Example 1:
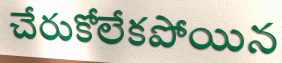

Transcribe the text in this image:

చేరుకోలేకపోయిన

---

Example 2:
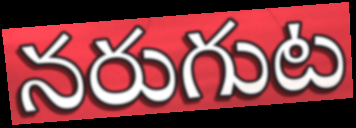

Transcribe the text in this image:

నరుగుట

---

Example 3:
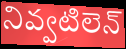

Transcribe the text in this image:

నివ్వటిలెన్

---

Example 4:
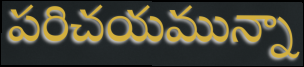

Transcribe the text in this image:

పరిచయమున్నా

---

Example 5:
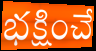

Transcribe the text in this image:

భక్షించే